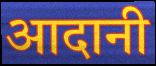
आदानी